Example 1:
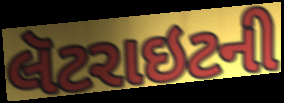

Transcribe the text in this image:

લૅટરાઇટની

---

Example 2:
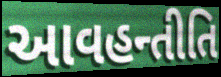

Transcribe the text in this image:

આવહન્તીતિ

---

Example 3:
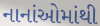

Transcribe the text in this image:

નાનાંઓમાંથી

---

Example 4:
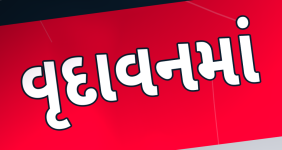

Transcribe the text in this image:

વૃદાવનમાં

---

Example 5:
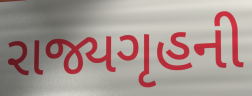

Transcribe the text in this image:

રાજ્યગૃહની